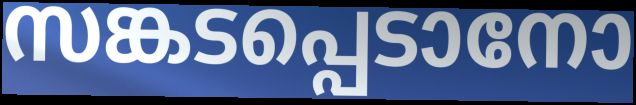
സങ്കടപ്പെടാനോ